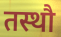
तस्थौ